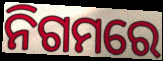
ନିଗମରେ